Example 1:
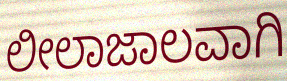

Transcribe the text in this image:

ಲೀಲಾಜಾಲವಾಗಿ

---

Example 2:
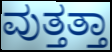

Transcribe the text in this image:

ವುತ್ತತ್ತಾ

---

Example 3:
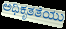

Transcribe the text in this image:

ಅಧಿಕೃತತೆಯು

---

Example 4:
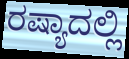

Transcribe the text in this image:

ರಷ್ಯಾದಲ್ಲಿ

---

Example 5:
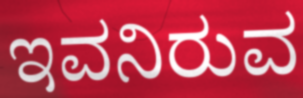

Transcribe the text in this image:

ಇವನಿರುವ